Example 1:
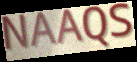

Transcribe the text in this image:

NAAQS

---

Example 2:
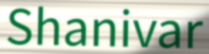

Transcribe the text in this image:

Shanivar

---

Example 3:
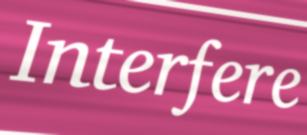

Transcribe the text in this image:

Interfere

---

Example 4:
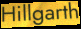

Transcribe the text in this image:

Hillgarth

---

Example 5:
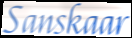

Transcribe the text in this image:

Sanskaar